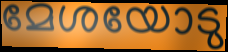
മേശയോടു